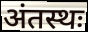
अंतस्थः